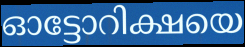
ഓട്ടോറിക്ഷയെ